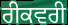
ਰੀਕਵਰੀ